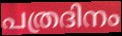
പത്രദിനം